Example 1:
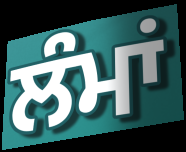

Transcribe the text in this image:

ਲੰਮਾਂ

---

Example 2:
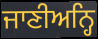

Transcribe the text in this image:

ਜਾਣੀਅਨ੍ਹਿ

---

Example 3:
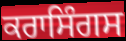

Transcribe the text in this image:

ਕਰਾਸਿੰਗਸ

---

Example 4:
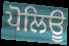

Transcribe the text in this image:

ਪੋਲਿਊ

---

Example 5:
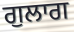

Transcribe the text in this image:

ਗੁਲਾਗ